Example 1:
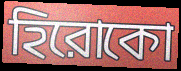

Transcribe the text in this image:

হিরোকো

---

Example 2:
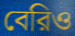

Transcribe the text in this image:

বেরিও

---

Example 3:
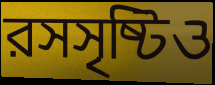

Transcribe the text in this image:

রসসৃষ্টিও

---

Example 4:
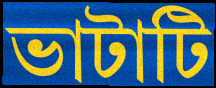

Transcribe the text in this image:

ভাটাটি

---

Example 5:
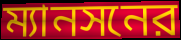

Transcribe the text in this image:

ম্যানসনের